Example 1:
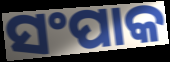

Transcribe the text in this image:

ସଂପାକ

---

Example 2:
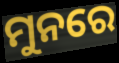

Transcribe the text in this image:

ମୁନରେ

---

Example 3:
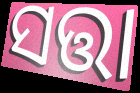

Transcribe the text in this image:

ସତ୍ତା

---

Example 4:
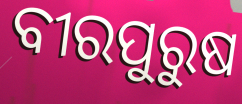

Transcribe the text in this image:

ବୀରପୁରୁଷ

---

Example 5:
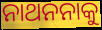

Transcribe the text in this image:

ନାଥନନାକୁ